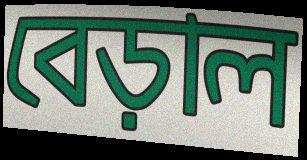
বেড়াল